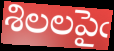
శిలలపైఁ